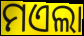
ମଏଲା